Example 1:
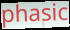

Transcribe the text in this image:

phasic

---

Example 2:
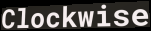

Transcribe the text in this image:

Clockwise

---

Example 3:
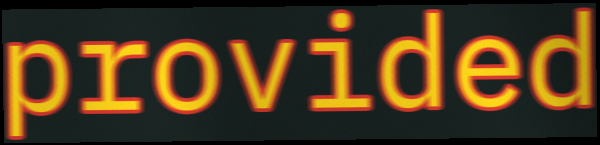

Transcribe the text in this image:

provided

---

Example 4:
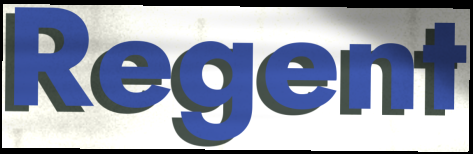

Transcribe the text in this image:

Regent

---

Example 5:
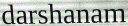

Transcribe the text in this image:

darshanam